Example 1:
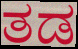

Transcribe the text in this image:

ತಡ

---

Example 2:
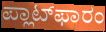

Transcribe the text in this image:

ಪ್ಲಾಟ್‌ಫಾರಂ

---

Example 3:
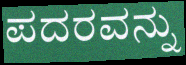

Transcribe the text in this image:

ಪದರವನ್ನು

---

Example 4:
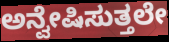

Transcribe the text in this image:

ಅನ್ವೇಷಿಸುತ್ತಲೇ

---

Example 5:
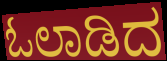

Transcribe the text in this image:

ಓಲಾಡಿದ